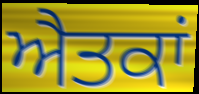
ਐਤਕਾਂ